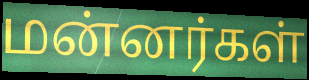
மன்னர்கள்